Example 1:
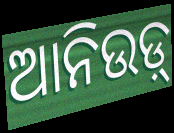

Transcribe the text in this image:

ଆନିଉଡ଼୍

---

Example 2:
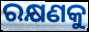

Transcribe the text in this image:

ରକ୍ଷଣକୁ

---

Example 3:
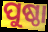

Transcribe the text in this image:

ପୁଷ୍ଠା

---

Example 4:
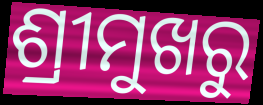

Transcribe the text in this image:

ଶ୍ରୀମୁଖରୁ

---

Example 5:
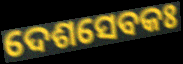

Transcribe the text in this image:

ଦେଶସେବକଃ